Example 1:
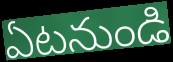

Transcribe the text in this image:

ఏటనుండి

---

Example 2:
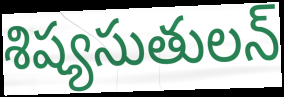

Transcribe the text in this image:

శిష్యసుతులన్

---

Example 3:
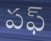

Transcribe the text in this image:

పఫ్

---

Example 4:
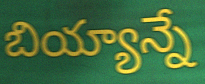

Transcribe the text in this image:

బియ్యాన్నే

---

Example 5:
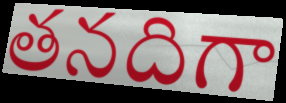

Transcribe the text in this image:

తనదిగా